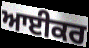
ਆਈਕਰ